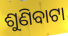
ଶୁଣିବାଟା